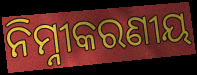
ନିମ୍ନୀକରଣୀୟ